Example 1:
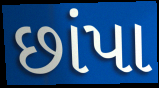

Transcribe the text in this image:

છાંપા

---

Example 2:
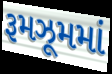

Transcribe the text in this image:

રૂમઝૂમમાં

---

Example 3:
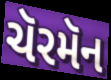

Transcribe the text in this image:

ચૅરમૅન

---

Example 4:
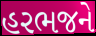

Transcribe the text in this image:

હરભજને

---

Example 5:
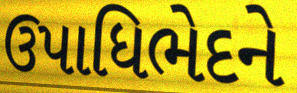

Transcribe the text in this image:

ઉપાધિભેદને